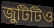
জুটিটিও